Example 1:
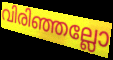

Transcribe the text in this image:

വിരിഞ്ഞല്ലോ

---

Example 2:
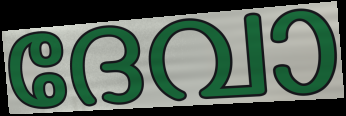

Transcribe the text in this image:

ദേവാ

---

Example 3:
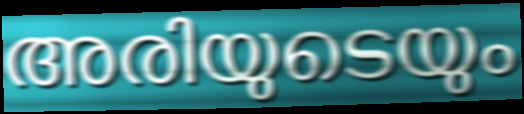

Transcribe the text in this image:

അരിയുടെയും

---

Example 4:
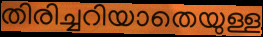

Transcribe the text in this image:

തിരിച്ചറിയാതെയുള്ള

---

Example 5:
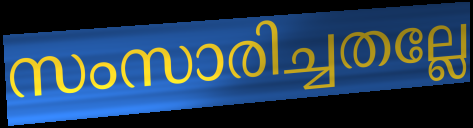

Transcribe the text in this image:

സംസാരിച്ചതല്ലേ